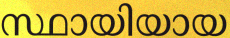
സ്ഥായിയായ